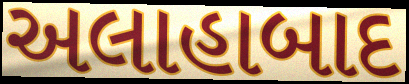
અલાહાબાદ